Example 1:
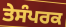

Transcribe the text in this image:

ਤੇਸੰਪਰਕ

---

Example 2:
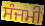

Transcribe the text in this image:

ਸੰਜਮੀ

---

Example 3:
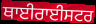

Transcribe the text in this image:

ਥਾਈਰਾਈਸਟਰ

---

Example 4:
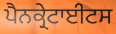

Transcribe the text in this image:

ਪੈਨਕ੍ਰੇਟਾਈਟਸ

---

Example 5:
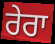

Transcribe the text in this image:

ਰੇਰਾ